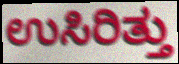
ಉಸಿರಿತ್ತು